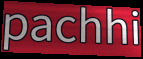
pachhi